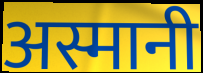
अस्मानी